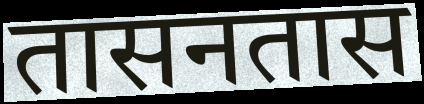
तासनतास